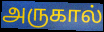
அருகால்